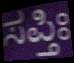
ಸಪ್ತಿಃ